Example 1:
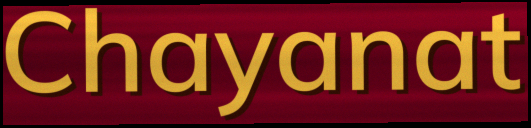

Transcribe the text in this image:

Chayanat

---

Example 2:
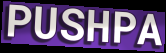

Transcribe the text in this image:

PUSHPA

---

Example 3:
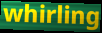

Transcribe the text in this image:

whirling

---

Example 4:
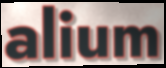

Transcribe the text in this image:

alium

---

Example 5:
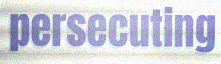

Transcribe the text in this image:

persecuting